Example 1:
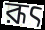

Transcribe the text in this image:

রূৎ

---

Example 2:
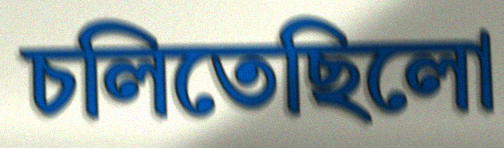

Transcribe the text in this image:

চলিতেছিলো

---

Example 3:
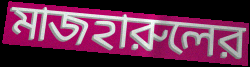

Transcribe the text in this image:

মাজহারুলের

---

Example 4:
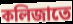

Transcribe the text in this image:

কলিজাতে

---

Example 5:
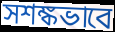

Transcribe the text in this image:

সশঙ্কভাবে